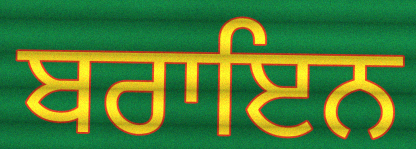
ਬਰਾਇਨ